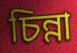
চিন্না